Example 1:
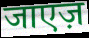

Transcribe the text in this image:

जाएज़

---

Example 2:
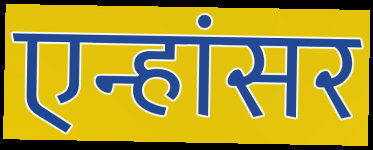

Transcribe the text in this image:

एन्हांसर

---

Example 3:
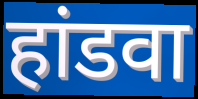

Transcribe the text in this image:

हांडवा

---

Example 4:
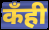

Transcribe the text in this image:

कँही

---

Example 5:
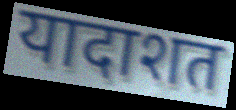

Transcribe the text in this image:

यादाशत